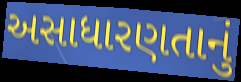
અસાધારણતાનું